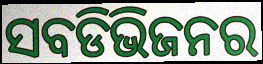
ସବଡିଭିଜନର